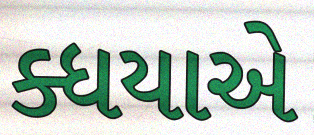
ક્ધયાએ